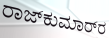
ರಾಜ್‌ಕುಮಾರ್‌ರ